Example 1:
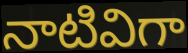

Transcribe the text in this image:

నాటివిగా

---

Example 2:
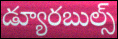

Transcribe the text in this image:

డ్యూరబుల్స్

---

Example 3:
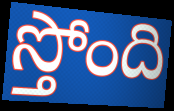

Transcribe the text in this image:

స్తోంది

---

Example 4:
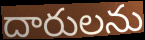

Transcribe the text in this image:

దారులను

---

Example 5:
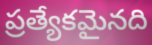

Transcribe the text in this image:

ప్రత్యేకమైనది